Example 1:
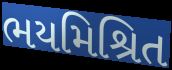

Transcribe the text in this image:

ભયમિશ્રિત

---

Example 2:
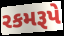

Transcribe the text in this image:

રકમરૂપે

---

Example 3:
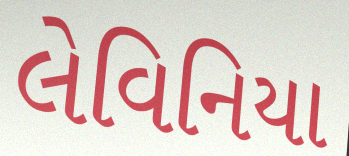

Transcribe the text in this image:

લેવિનિયા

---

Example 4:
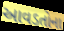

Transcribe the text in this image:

આવડતોના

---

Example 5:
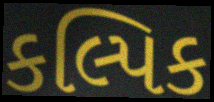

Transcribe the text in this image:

કલ્પિક